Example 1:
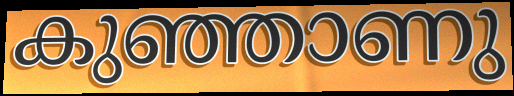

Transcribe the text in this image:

കുഞ്ഞാണു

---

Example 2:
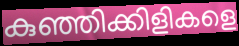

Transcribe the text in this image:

കുഞ്ഞിക്കിളികളെ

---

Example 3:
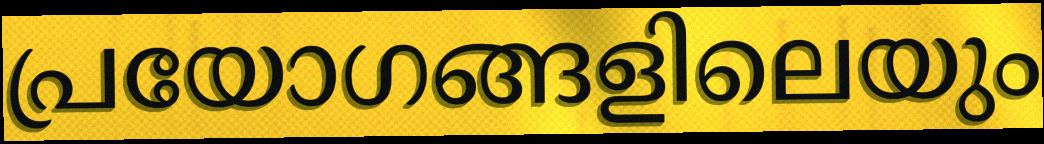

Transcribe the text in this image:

പ്രയോഗങ്ങളിലെയും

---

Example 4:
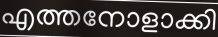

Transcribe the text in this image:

എത്തനോളാക്കി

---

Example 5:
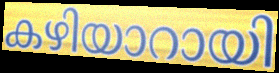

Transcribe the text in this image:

കഴിയാറായി